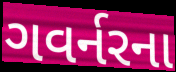
ગવર્નરના